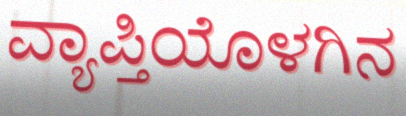
ವ್ಯಾಪ್ತಿಯೊಳಗಿನ